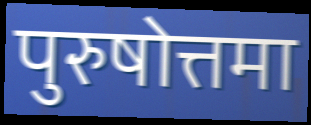
पुरुषोत्तमा